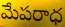
మేపరాధ